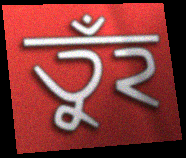
তুঁহ